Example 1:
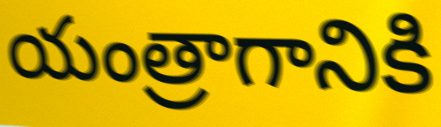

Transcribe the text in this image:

యంత్రాగానికి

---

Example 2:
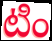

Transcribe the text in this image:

టిం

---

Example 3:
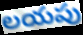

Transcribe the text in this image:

లయపు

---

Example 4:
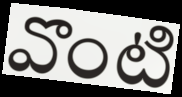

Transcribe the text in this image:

వొంటి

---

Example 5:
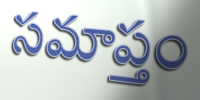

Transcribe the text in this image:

సమాప్తం